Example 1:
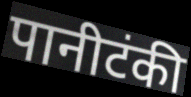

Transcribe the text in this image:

पानीटंकी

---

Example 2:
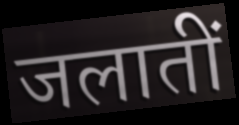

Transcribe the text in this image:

जलातीं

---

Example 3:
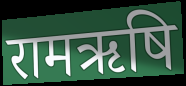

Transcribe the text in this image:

रामऋषि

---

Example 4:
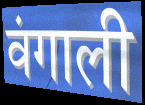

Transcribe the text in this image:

वंगाली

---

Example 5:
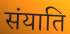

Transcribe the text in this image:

संयाति